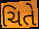
ચિતે